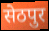
सेठपुर